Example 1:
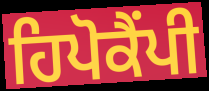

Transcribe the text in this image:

ਹਿਪੋਕੈਂਪੀ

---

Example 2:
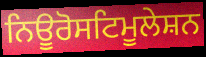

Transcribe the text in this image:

ਨਿਊਰੋਸਟਿਮੂਲੇਸ਼ਨ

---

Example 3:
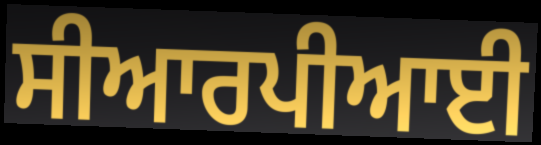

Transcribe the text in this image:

ਸੀਆਰਪੀਆਈ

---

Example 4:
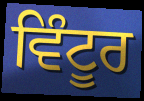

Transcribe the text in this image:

ਵਿੰਟੂਰ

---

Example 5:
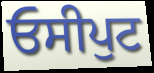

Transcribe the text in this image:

ਓਸੀਪੁਟ